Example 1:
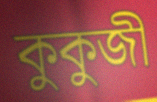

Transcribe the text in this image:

কুকুজী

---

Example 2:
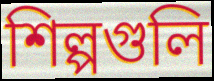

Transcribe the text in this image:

শিল্পগুলি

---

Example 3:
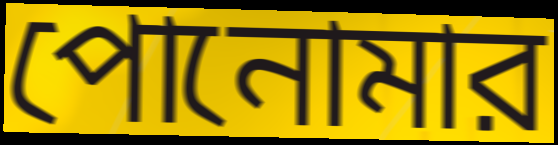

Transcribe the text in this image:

পোনোমার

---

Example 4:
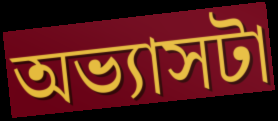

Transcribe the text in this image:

অভ্যাসটা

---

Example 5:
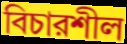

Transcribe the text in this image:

বিচারশীল